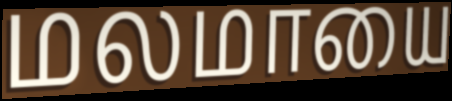
மலமாயை